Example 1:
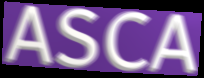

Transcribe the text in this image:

ASCA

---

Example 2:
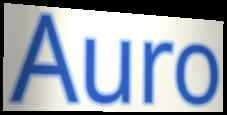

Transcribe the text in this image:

Auro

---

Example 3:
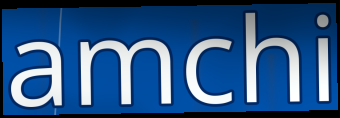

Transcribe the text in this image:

amchi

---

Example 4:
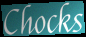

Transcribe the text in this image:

Chocks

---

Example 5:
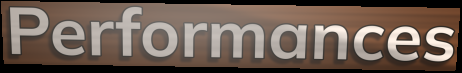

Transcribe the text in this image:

Performances